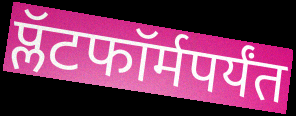
प्लॅटफॉर्मपर्यंत